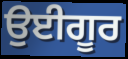
ਉਈਗੂਰ